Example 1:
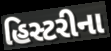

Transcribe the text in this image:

હિસ્ટરીના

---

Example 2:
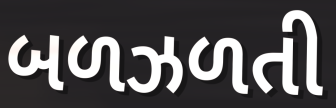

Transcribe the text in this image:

બળઝળતી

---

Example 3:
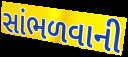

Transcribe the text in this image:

સાંભળવાની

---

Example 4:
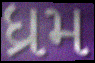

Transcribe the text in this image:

ધ્રમ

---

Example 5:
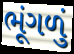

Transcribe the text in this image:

ભૂંગળું